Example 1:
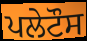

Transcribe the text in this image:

ਪਲੇਟੌਸ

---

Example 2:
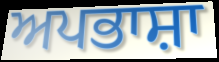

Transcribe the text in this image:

ਅਪਭਾਸ਼ਾ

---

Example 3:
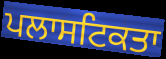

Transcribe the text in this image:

ਪਲਾਸਟਿਕਤਾ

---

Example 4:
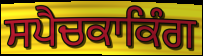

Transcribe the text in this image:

ਸਪੈਚਕਾਕਿੰਗ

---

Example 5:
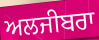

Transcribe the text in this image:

ਅਲਜੀਬਰਾ